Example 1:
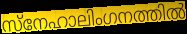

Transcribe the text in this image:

സ്നേഹാലിംഗനത്തിൽ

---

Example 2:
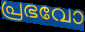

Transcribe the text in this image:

പ്രഭവോ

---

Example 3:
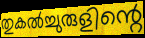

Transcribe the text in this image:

തുകൽച്ചുരുളിന്റെ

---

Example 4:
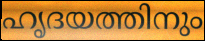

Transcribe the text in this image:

ഹൃദയത്തിനും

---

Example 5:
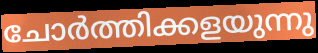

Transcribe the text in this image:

ചോർത്തിക്കളയുന്നു